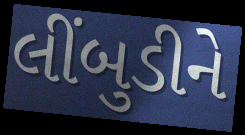
લીંબુડીને